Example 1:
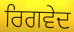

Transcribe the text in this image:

ਰਿਗਵੇਦ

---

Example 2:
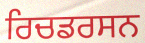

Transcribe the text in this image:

ਰਿਚਡਰਸਨ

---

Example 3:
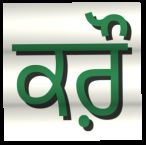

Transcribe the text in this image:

ਕਰ਼ੌ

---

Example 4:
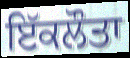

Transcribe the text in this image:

ਇੱਕਲੌਤਾ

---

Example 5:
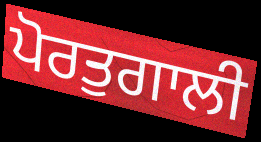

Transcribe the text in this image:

ਪੋਰਤੁਗਾਲੀ